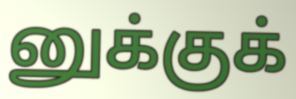
னுக்குக்